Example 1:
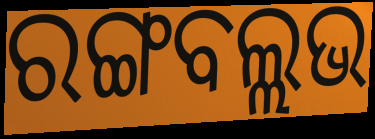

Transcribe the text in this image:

ରଙ୍ଗବଲ୍ଲଭ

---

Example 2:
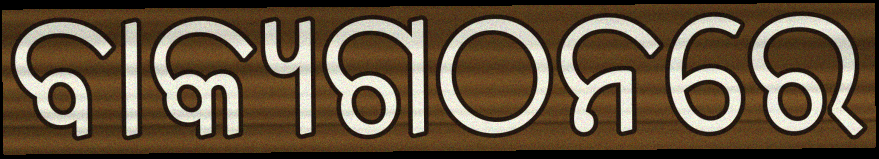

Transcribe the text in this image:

ବାକ୍ୟଗଠନରେ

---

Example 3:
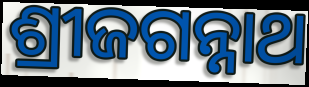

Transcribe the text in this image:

ଶ୍ରୀଜଗନ୍ନାଥ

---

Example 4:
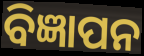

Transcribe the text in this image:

ବିଜ୍ଞାପନ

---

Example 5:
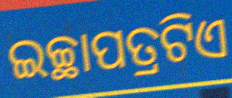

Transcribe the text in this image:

ଇଚ୍ଛାପତ୍ରଟିଏ